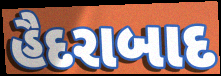
હૈદરાબાદ